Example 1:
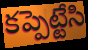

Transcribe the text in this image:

కప్పెట్టేసి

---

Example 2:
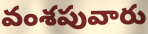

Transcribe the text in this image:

వంశపువారు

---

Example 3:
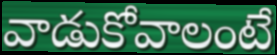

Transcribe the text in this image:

వాడుకోవాలంటే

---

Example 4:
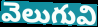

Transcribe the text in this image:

వెలుగువి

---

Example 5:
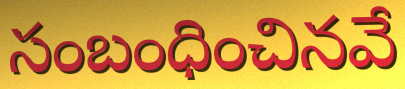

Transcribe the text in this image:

సంబంధించినవే